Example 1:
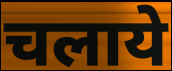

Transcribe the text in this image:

चलाये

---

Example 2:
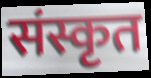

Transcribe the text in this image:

संस्कृत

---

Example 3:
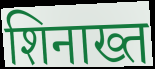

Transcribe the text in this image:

शिनाख्त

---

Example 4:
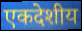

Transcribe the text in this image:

एकदेशीय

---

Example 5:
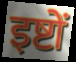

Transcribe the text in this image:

इष्टों